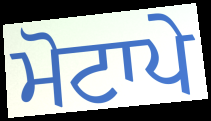
ਮੋਟਾਪੇ